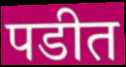
पडीत